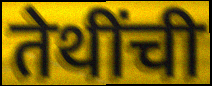
तेथींची